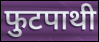
फुटपाथी